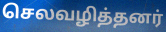
செலவழித்தனர்